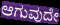
ಆಗುವುದೇ